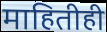
माहितीही